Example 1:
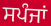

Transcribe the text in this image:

ਸਪੰਜਾਂ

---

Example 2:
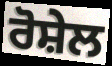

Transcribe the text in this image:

ਰੋਸ਼ੇਲ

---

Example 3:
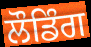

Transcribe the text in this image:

ਲੌਡਿੰਗ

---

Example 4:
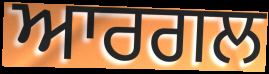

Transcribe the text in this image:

ਆਰਗਲ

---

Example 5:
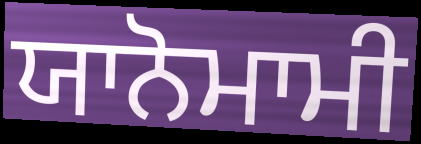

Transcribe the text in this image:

ਯਾਨੋਮਾਮੀ